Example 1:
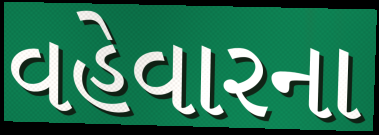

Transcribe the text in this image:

વહેવારના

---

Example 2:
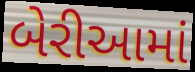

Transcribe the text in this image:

બેરીઆમાં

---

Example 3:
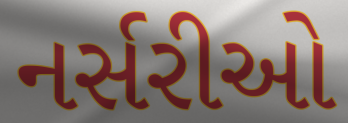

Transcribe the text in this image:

નર્સરીઓ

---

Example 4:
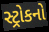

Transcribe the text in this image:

સ્ટ્રોકનો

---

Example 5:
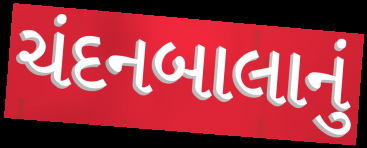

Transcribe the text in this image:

ચંદનબાલાનું